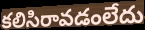
కలిసిరావడంలేదు